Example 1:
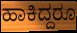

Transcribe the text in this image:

ಹಾಕಿದ್ದರೂ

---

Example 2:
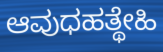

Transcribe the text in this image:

ಆವುಧಹತ್ಥೇಹಿ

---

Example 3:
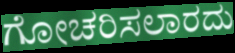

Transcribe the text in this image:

ಗೋಚರಿಸಲಾರದು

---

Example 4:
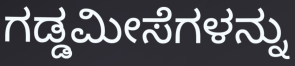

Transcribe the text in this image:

ಗಡ್ಡಮೀಸೆಗಳನ್ನು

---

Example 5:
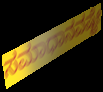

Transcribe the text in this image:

ಸಮಾಧಾನವಷ್ಟೇ